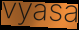
vyasa